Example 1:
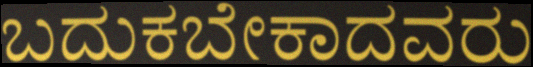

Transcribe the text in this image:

ಬದುಕಬೇಕಾದವರು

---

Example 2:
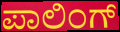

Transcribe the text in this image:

ಪಾಲಿಂಗ್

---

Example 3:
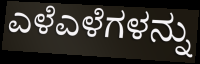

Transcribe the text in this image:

ಎಳೆಎಳೆಗಳನ್ನು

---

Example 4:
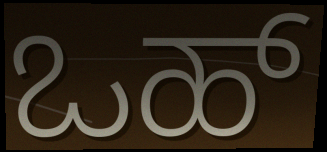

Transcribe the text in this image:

ಒಹ್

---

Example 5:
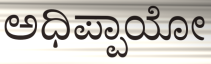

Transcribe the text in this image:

ಅಧಿಪ್ಪಾಯೋ